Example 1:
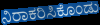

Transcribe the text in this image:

ನಿರಾಕರಿಸಿಕೊಂಡು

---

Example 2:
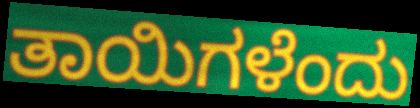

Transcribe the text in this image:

ತಾಯಿಗಳೆಂದು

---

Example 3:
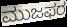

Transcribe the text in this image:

ಮುಜಫರ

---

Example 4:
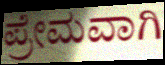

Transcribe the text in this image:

ಪ್ರೇಮವಾಗಿ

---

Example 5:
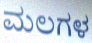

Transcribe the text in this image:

ಮಲಗಳ